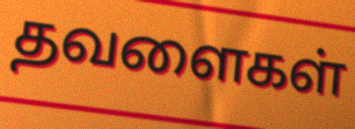
தவளைகள்